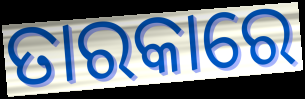
ତାରକାରେ